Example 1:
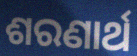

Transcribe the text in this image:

ଶରଣାର୍ଥ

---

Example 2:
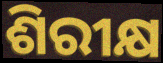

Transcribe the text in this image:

ଶିରୀକ୍ଷ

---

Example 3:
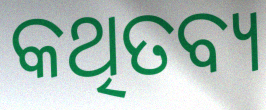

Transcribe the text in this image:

କଥିତବ୍ୟ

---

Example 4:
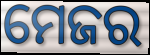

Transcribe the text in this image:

ମେଜର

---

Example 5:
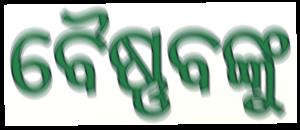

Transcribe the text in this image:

ବୈଷ୍ଣବଙ୍କୁ